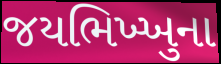
જયભિખ્ખુના